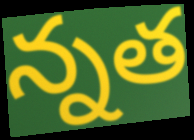
న్నత